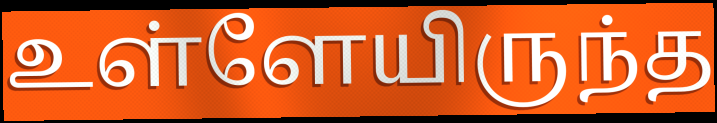
உள்ளேயிருந்த